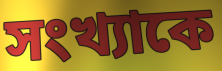
সংখ্যাকে